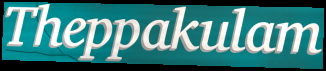
Theppakulam